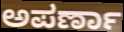
ಅಪರ್ಣಾ